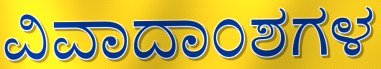
ವಿವಾದಾಂಶಗಳ